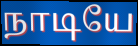
நாடியே